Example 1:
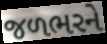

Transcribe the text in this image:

જળભરને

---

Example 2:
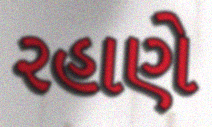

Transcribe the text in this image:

રહાણે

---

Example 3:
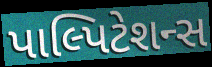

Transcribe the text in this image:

પાલ્પિટેશન્સ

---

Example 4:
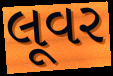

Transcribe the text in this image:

લૂવર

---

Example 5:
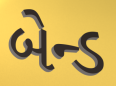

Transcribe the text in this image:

બેન્ડ